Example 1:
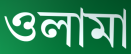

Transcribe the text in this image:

ওলামা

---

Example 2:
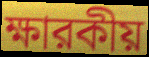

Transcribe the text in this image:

ক্ষারকীয়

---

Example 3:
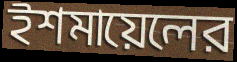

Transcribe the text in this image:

ইশমায়েলের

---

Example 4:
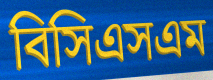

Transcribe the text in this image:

বিসিএসএম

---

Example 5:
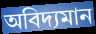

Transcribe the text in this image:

অবিদ্যমান